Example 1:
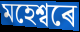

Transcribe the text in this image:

মহেশ্বৰে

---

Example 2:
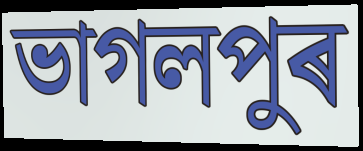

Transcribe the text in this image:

ভাগলপুৰ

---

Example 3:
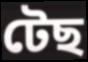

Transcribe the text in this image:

টেছ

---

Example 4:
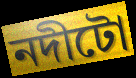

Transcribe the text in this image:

নদীটো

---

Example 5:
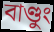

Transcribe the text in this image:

বাণ্ডুং